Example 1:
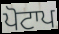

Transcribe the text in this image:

ਪੋਟਾਪ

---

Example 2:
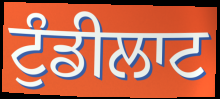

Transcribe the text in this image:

ਟੁੰਡੀਲਾਟ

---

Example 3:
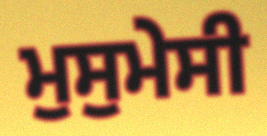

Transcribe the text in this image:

ਮੁਸੁਮੇਸੀ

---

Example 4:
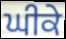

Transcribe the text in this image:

ਘੀਕੇ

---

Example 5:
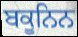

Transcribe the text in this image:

ਬਕੂਨਿਨ